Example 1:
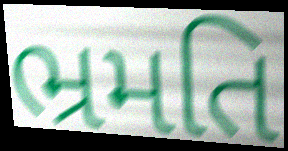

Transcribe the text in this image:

ભ્રમતિ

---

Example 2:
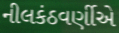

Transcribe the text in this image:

નીલકંઠવર્ણીએ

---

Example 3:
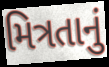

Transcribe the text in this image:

મિત્રતાનું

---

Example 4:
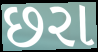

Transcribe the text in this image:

છરા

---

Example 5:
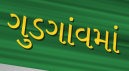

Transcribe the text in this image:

ગુડગાંવમાં